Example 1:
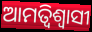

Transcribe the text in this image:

ଆମତ୍ବିଶ୍ୱାସୀ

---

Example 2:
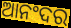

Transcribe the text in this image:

ଆନଂଦର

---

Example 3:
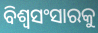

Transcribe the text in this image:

ବିଶ୍ୱସଂସାରକୁ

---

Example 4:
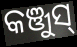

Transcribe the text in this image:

କଞ୍ଜୁସ୍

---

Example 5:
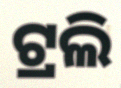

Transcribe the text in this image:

ଟ୍ରଲି